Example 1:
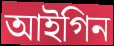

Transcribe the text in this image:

আইগিন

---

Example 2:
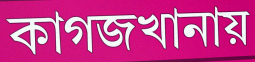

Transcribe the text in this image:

কাগজখানায়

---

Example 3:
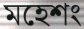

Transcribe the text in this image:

মহেশং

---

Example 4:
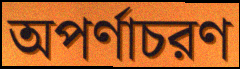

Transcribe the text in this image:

অপর্ণাচরণ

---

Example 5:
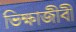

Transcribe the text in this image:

ভিক্ষাজীবী